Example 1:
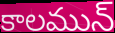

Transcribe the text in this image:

కాలమున్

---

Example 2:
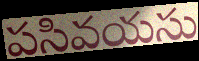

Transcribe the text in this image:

పసివయసు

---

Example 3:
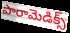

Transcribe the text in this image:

పారామెడిక్స్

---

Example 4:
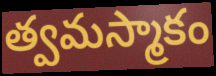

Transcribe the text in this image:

త్వమస్మాకం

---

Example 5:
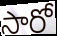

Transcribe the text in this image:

సారో